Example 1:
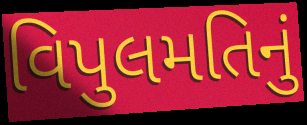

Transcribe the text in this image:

વિપુલમતિનું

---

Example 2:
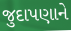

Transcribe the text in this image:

જુદાપણાને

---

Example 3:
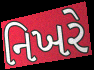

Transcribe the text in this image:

નિખરે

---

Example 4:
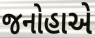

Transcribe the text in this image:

જનોહાએ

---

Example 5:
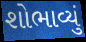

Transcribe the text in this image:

શોભાવ્યું